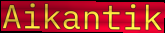
Aikantik